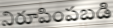
నిరూపింపబడి